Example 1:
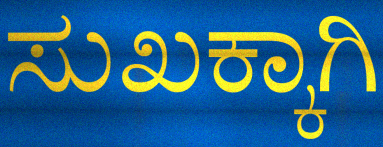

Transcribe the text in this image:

ಸುಖಕ್ಕಾಗಿ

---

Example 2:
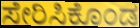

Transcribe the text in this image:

ಸೇರಿಸಿಕೊಂಡ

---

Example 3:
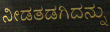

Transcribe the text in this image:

ನೀಡತಡಗಿದನ್ನು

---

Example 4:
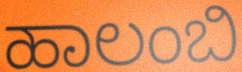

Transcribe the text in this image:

ಹಾಲಂಬಿ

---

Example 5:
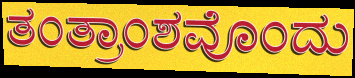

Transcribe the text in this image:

ತಂತ್ರಾಂಶವೊಂದು